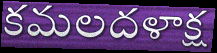
కమలదళాక్ష